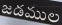
జడముల